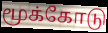
மூக்கோடு